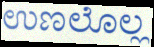
ಉಣಲೊಲ್ಲ